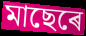
মাছেৰে